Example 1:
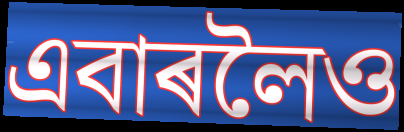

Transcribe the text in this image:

এবাৰলৈও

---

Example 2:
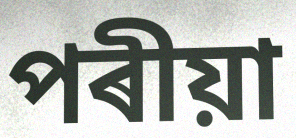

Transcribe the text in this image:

পৰীয়া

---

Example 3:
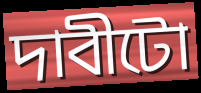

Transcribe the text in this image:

দাবীটো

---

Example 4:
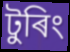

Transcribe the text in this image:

টুৰিং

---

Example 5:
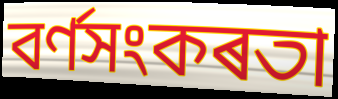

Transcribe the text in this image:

বৰ্ণসংকৰতা